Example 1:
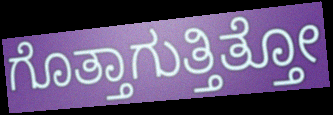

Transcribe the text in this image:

ಗೊತ್ತಾಗುತ್ತಿತ್ತೋ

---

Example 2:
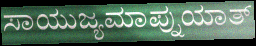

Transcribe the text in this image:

ಸಾಯುಜ್ಯಮಾಪ್ನುಯಾತ್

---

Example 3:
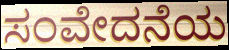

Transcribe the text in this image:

ಸಂವೇದನೆಯ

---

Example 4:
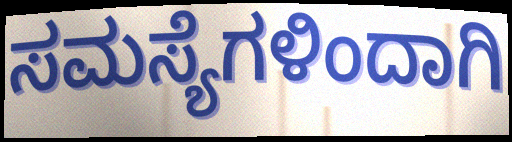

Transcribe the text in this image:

ಸಮಸ್ಯೆಗಳಿಂದಾಗಿ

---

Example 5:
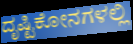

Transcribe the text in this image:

ದೃಷ್ಟಿಕೋನಗಳಲ್ಲಿ